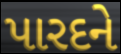
પારદને